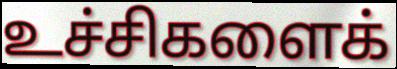
உச்சிகளைக்